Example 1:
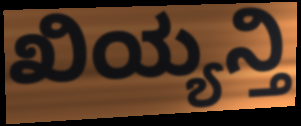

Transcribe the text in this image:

ಖಿಯ್ಯನ್ತಿ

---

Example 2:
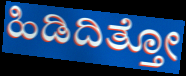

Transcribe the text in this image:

ಹಿಡಿದಿತ್ತೋ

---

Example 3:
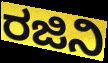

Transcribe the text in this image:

ರಜಿನಿ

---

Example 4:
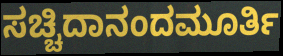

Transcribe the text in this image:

ಸಚ್ಚಿದಾನಂದಮೂರ್ತಿ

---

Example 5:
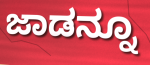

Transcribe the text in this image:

ಜಾಡನ್ನೂ